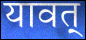
यावत्